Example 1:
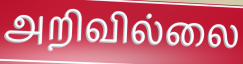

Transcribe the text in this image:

அறிவில்லை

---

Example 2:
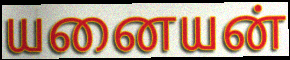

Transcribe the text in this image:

யனையன்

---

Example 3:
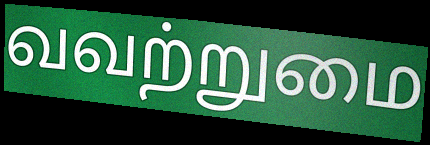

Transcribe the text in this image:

வவற்றுமை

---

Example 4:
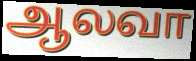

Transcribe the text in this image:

ஆலவா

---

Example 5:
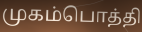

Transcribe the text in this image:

முகம்பொத்தி